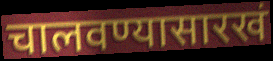
चालवण्यासारखं